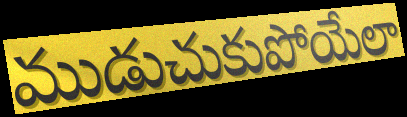
ముడుచుకుపోయేలా